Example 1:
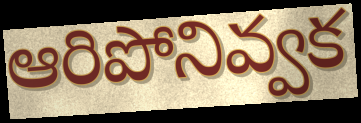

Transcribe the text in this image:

ఆరిపోనివ్వక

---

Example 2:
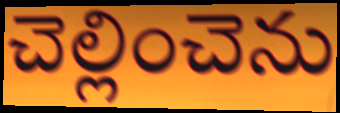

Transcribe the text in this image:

చెల్లించెను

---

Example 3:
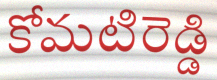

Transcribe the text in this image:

కోమటిరెడ్డి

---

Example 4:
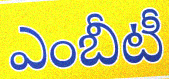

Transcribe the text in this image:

ఎంబీటీ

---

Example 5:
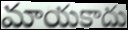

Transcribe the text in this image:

మాయకాదు